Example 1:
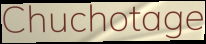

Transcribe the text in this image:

Chuchotage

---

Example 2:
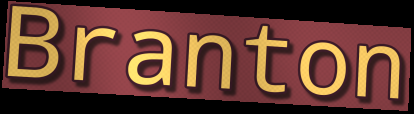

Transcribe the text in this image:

Branton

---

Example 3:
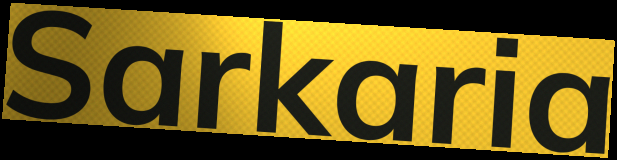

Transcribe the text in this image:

Sarkaria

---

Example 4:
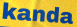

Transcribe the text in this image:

kanda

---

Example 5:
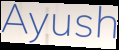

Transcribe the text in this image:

Ayush